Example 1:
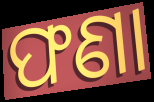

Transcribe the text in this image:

ଫଣା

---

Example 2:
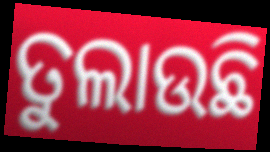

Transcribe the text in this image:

ତୁଲାଉଛି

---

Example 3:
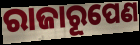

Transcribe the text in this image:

ରାଜାରୂପେଣ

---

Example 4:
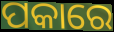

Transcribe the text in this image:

ପକାରେ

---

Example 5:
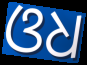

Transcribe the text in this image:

ଓଧ